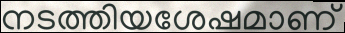
നടത്തിയശേഷമാണ്